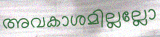
അവകാശമില്ലല്ലോ